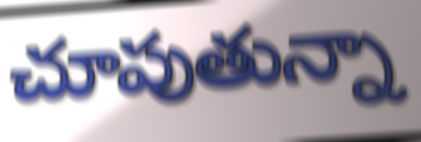
చూపుతున్నా